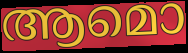
ആമൊ